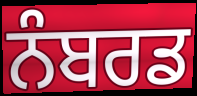
ਨੰਬਰਡ